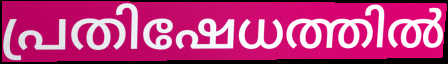
പ്രതിഷേധത്തിൽ